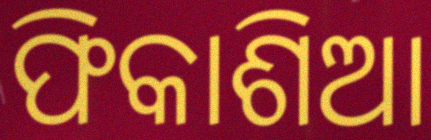
ଫିକାଶିଆ